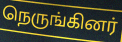
நெருங்கினர்